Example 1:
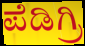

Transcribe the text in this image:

ಪೆಡಿಗ್ರಿ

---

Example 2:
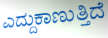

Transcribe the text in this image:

ಎದ್ದುಕಾಣುತ್ತಿದೆ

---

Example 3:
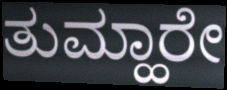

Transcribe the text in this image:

ತುಮ್ಹಾರೇ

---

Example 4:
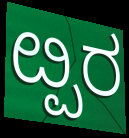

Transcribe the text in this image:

ೞ್ಪರ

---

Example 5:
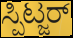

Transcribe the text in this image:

ಸ್ಪಿಟ್ಜರ್